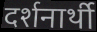
दर्शनार्थी